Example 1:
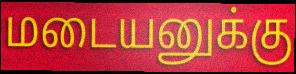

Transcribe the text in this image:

மடையனுக்கு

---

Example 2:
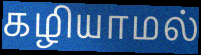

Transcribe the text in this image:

கழியாமல்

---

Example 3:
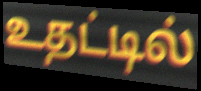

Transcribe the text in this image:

உதட்டில்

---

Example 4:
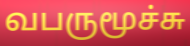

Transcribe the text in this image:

வபருமூச்சு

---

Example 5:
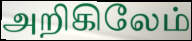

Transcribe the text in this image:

அறிகிலேம்